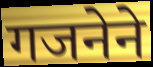
गजनेने